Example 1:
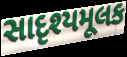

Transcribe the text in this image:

સાદૃશ્યમૂલક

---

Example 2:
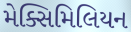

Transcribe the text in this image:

મેક્સિમિલિયન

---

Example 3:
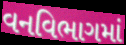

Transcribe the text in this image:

વનવિભાગમાં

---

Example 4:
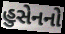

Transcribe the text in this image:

હુસેનનો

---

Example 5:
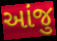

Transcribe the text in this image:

આંજુ